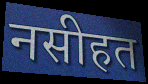
नसीहत